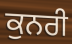
ਕੁਨਰੀ